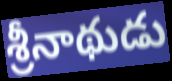
శ్రీనాథుడు